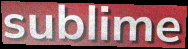
sublime